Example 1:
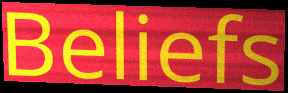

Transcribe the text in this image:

Beliefs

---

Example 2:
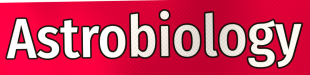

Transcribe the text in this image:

Astrobiology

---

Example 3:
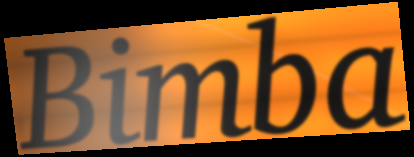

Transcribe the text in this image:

Bimba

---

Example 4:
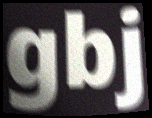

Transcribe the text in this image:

gbj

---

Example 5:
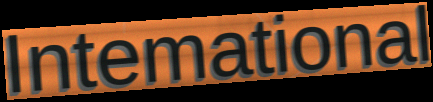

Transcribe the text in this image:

Intemational